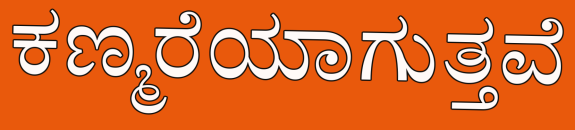
ಕಣ್ಮರೆಯಾಗುತ್ತವೆ